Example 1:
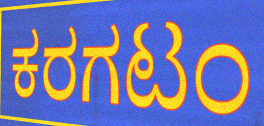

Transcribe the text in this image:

ಕರಗಟಂ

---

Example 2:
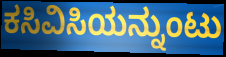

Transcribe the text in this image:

ಕಸಿವಿಸಿಯನ್ನುಂಟು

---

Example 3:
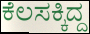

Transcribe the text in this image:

ಕೆಲಸಕ್ಕಿದ್ದ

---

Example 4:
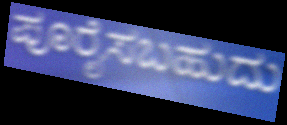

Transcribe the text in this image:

ಪೂರೈಸಬಹುದು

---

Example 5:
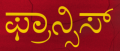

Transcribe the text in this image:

ಫ್ರಾನ್ಸಿಸ್